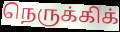
நெருக்கிக்